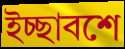
ইচ্ছাবশে